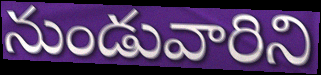
నుండువారిని